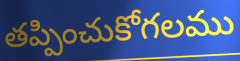
తప్పించుకోగలము